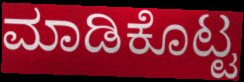
ಮಾಡಿಕೊಟ್ಟ